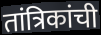
तांत्रिकांची